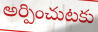
అర్పించుటకు